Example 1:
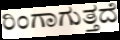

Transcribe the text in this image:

ರಿಂಗಾಗುತ್ತದೆ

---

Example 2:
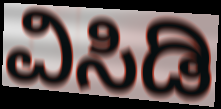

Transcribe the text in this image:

ವಿಸಿಡಿ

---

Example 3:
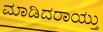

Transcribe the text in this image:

ಮಾಡಿದರಾಯ್ತು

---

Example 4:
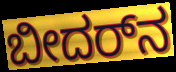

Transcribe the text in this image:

ಬೀದರ್‌ನ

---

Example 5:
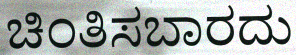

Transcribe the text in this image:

ಚಿಂತಿಸಬಾರದು